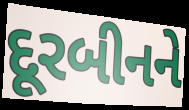
દૂરબીનને